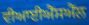
ਵੀਆਈਐੱਸਐੱਲ